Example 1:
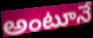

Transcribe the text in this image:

అంటూనే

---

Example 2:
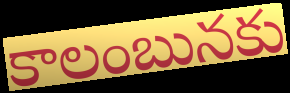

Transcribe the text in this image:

కాలంబునకు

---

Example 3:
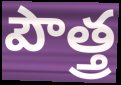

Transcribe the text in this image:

పౌత్త్ర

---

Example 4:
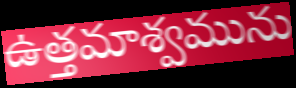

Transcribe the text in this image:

ఉత్తమాశ్వమును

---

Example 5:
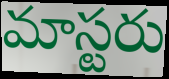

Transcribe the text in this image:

మాస్టరు